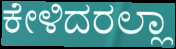
ಕೇಳಿದರಲ್ಲಾ